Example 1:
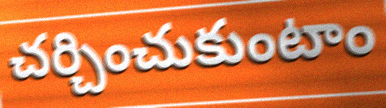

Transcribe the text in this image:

చర్చించుకుంటాం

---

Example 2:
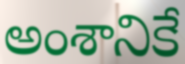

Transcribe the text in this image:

అంశానికే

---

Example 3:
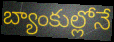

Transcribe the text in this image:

బ్యాంకుల్లోనే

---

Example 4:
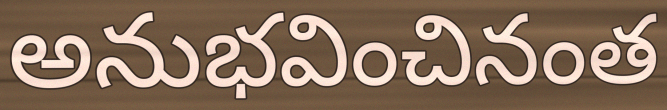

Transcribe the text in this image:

అనుభవించినంత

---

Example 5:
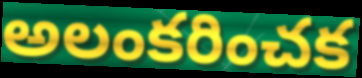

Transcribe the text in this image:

అలంకరించక